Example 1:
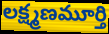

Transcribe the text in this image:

లక్ష్మణమూర్తి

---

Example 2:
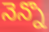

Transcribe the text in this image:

నెన్నొ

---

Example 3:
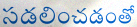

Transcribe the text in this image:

సడలించడంతో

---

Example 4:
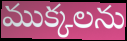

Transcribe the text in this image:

ముక్కలను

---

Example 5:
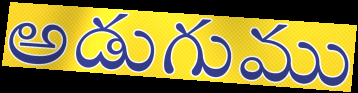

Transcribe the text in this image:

అడుగుము